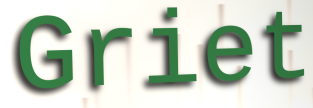
Griet